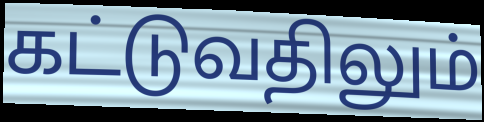
கட்டுவதிலும்